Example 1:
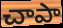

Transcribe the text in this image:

చాపా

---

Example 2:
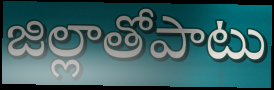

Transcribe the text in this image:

జిల్లాతోపాటు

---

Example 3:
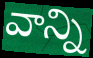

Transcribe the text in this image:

వాన్ని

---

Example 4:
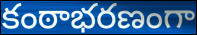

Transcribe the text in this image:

కంఠాభరణంగా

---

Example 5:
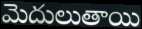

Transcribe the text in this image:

మెదులుతాయి